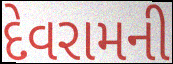
દેવરામની